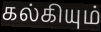
கல்கியும்